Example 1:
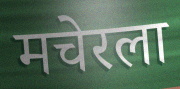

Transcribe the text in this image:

मचेरला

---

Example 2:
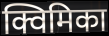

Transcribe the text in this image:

क्विमिका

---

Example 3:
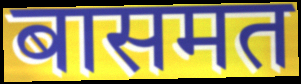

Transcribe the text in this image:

बासमत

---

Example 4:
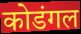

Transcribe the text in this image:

कोडंगल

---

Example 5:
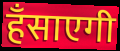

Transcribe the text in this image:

हँसाएगी